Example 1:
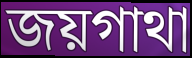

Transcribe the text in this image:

জয়গাথা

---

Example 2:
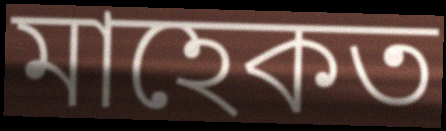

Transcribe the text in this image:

মাহেকত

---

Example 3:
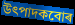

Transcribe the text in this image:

উৎপাদকবোৰ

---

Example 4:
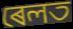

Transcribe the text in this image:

ৰেলত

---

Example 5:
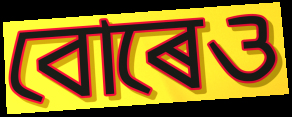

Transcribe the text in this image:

বোৰেও